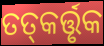
ତତ୍‌କର୍ତ୍ତୃକ